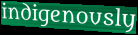
indigenously